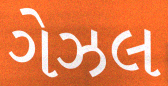
ગેઝલ